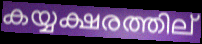
കയ്യക്ഷരത്തില്